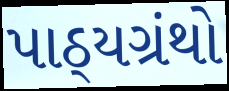
પાઠ્યગ્રંથો